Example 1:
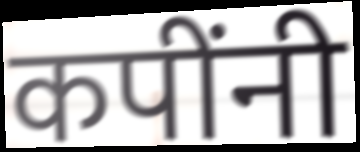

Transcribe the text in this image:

कपींनी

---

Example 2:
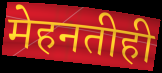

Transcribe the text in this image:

मेहनतीही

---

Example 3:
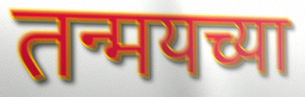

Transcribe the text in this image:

तन्मयच्या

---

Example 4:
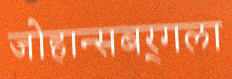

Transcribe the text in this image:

जोहान्सबर्गला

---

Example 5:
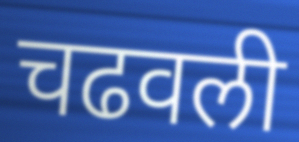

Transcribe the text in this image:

चढवली